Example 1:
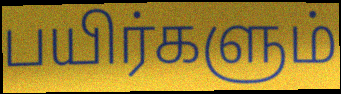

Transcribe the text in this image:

பயிர்களும்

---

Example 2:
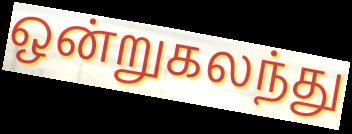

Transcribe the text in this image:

ஒன்றுகலந்து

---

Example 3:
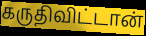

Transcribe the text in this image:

கருதிவிட்டான்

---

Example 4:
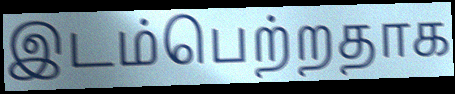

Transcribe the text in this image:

இடம்பெற்றதாக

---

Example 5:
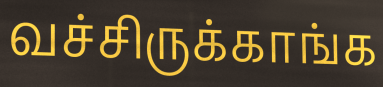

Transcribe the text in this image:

வச்சிருக்காங்க